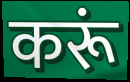
करूं